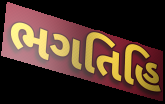
ભગતિહિ